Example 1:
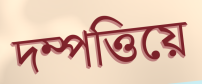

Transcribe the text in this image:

দম্পত্তিয়ে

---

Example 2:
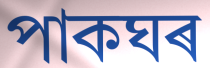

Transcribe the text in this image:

পাকঘৰ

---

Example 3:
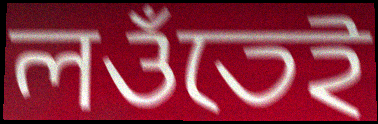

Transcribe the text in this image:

লওঁতেই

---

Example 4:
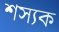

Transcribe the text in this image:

শস্যক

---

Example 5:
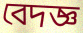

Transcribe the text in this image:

বেদজ্ঞ